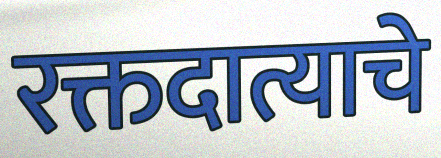
रक्तदात्याचे